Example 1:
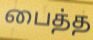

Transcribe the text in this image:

பைத்த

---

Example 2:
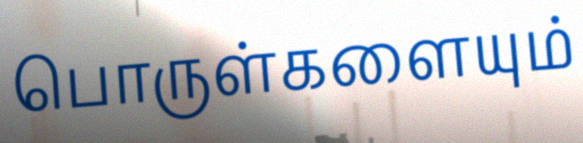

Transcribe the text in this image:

பொருள்களையும்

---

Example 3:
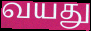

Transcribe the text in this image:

வயது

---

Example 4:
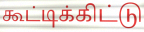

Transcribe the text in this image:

கூட்டிக்கிட்டு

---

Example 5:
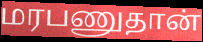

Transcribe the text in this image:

மரபணுதான்